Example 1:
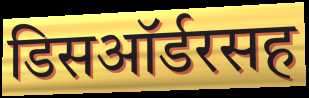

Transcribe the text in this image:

डिसऑर्डरसह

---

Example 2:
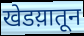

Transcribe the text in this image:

खेडय़ातून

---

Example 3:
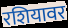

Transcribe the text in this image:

रशियावर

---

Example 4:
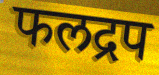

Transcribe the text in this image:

फलद्रप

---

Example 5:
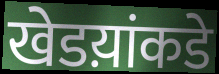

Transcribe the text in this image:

खेडय़ांकडे